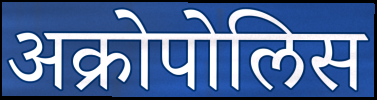
अक्रोपोलिस